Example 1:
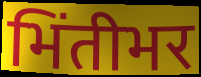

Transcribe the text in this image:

भिंतीभर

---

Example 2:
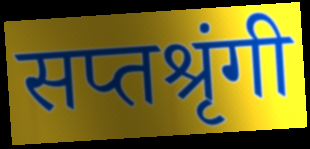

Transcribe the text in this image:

सप्तश्रृंगी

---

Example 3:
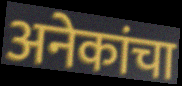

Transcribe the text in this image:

अनेकांचा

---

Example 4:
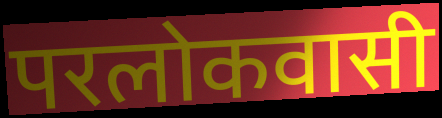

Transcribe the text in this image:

परलोकवासी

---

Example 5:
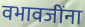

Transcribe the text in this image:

वभावजींना